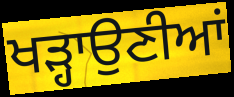
ਖੜ੍ਹਾਉਣੀਆਂ